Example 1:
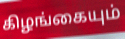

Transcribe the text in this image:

கிழங்கையும்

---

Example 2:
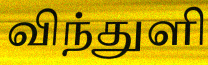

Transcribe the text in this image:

விந்துளி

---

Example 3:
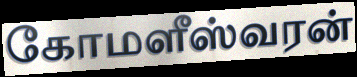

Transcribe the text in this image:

கோமளீஸ்வரன்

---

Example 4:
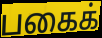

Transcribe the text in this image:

பகைக்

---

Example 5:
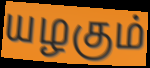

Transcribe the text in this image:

யழகும்